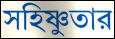
সহিষ্ণুতার